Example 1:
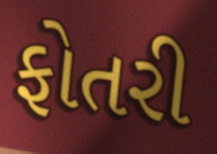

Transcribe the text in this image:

ફોતરી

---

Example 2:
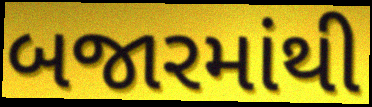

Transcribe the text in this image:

બજારમાંથી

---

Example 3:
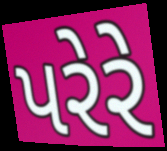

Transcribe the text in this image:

પરેરે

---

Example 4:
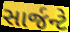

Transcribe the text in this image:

સાર્જન્ટે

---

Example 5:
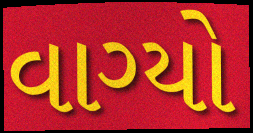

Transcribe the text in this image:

વાગ્યો